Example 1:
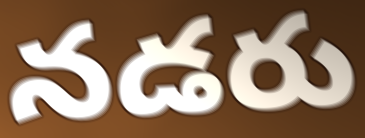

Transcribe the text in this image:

నడరు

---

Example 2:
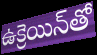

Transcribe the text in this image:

ఉక్రెయిన్‌తో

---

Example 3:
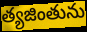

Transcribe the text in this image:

త్యజింతును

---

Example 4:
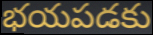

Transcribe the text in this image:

భయపడకు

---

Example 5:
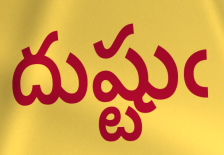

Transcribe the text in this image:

దుష్టుఁ